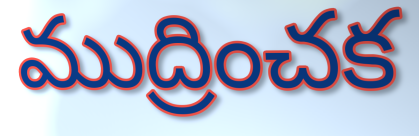
ముద్రించక